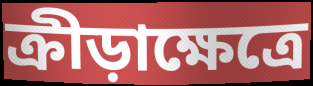
ক্রীড়াক্ষেত্রে